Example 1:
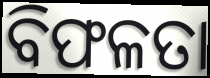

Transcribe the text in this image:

ବିଫଳତା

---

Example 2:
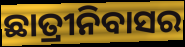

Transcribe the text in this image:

ଛାତ୍ରୀନିବାସର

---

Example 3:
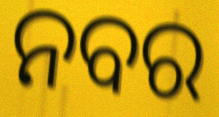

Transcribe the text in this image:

ନବର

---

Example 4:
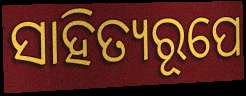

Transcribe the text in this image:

ସାହିତ୍ୟରୂପେ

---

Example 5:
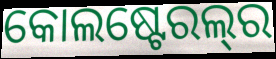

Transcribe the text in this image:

କୋଲଷ୍ଟେରଲ୍‌ର